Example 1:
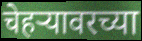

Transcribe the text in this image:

चेहर्‍यावरच्या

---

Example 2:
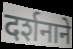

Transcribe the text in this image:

दर्शनाने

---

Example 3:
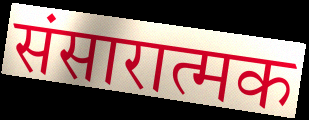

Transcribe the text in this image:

संसारात्मक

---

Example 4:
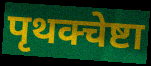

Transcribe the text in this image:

पृथक्चेष्टा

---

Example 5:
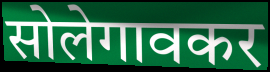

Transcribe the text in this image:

सोलेगावकर